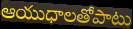
ఆయుధాలతోపాటు